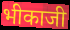
भीकाजी